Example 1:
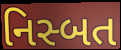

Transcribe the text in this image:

નિસ્બત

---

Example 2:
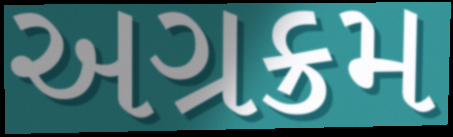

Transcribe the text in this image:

અગ્રક્રમ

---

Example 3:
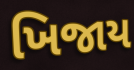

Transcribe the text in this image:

ખિજાય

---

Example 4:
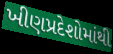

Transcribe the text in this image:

ખીણપ્રદેશોમાંથી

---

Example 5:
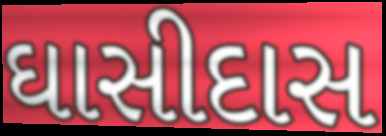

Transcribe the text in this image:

ઘાસીદાસ